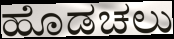
ಹೊಡಚಲು